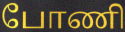
போணி